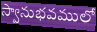
స్వానుభవములో